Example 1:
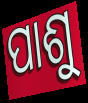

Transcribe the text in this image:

ପାଶୁ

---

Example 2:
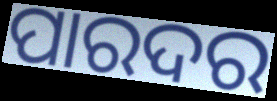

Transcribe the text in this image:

ପାରଦର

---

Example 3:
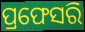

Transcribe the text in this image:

ପ୍ରଫେସରି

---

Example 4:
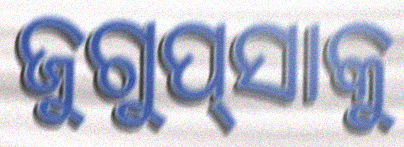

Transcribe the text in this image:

ଜୁଗୁପ୍‍ସାକୁ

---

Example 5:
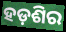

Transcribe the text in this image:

ହଡ଼ଶିର